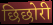
छिछोरी